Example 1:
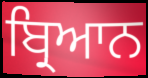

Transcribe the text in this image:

ਬ੍ਰਿਆਨ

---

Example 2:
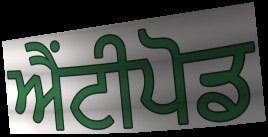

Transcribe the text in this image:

ਐਂਟੀਪੋਡ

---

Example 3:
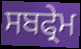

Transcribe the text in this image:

ਸਬਫ੍ਰੇਮ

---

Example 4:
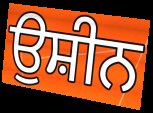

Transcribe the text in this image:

ਉਸ਼ੀਨ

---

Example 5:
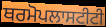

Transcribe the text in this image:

ਥਰਮੋਪਲਾਸਟੀਟੀ